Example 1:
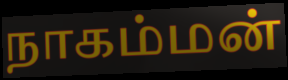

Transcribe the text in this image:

நாகம்மன்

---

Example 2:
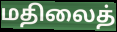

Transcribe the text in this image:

மதிலைத்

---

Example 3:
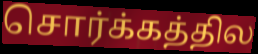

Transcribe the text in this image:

சொர்க்கத்தில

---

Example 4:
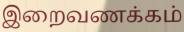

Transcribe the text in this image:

இறைவணக்கம்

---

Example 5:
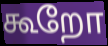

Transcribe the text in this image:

கூறோ